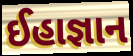
ઈહાજ્ઞાન